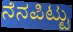
ನೆನಪಿಟ್ಟು